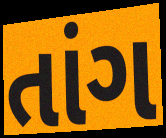
તાંગ